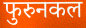
फुरुनकल